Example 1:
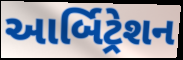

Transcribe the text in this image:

આર્બિટ્રેશન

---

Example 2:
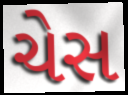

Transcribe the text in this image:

ચેસ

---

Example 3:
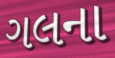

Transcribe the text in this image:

ગલના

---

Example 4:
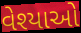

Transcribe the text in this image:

વેશ્યાઓ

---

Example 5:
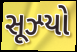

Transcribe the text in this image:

સૂઝ્યો